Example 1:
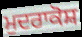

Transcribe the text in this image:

ਮੁਦਰਾਕੋਸ਼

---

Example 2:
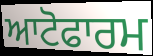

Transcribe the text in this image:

ਆਟੋਫਾਰਮ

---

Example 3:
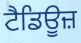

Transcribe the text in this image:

ਟੈਡਿਊਜ਼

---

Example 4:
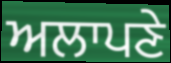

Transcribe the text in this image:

ਅਲਾਪਣੇ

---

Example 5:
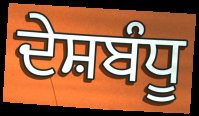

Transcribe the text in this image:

ਦੇਸ਼ਬੰਧੂ